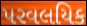
પરવલયિક